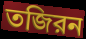
তজিরন